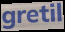
gretil